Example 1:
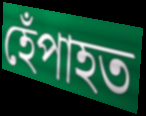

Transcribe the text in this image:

হেঁপাহত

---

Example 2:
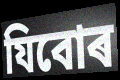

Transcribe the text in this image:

যিবোৰ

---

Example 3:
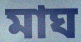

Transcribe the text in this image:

মাঘ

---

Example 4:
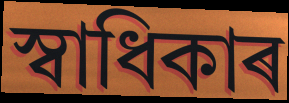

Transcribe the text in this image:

স্বাধিকাৰ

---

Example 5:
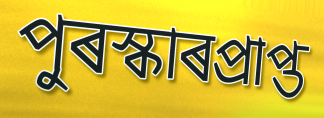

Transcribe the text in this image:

পুৰস্কাৰপ্ৰাপ্ত